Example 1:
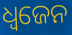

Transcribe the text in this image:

ଧ୍ଵଜେନ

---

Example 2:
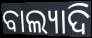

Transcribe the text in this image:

ବାଲ୍ୟାଦି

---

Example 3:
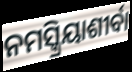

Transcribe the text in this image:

ନମସ୍କ୍ରିୟାଶୀର୍ବା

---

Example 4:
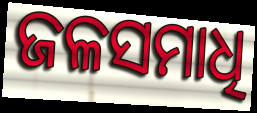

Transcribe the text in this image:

ଜଳସମାଧି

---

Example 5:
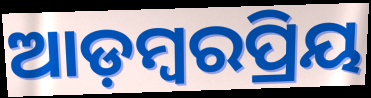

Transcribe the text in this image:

ଆଡ଼ମ୍ବରପ୍ରିୟ